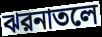
ঝরনাতলে